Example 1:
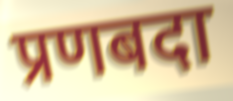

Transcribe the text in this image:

प्रणबदा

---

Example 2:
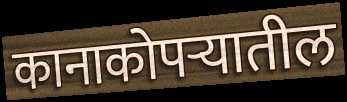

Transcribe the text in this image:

कानाकोपऱ्यातील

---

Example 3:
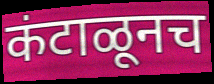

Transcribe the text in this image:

कंटाळूनच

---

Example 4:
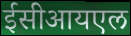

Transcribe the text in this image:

ईसीआयएल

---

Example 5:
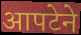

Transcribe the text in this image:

आपटेने